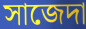
সাজেদা